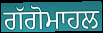
ਗੱਗੋਮਾਹਲ